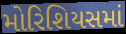
મોરિશિયસમાં